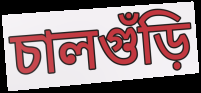
চালগুঁড়ি